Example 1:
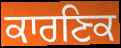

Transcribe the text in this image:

ਕਾਰਣਿਕ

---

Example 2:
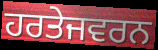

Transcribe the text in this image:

ਹਰਤੇਜਵਰਨ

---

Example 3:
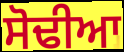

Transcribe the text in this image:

ਸੋਢੀਆ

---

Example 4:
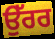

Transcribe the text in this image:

ਉੱਰਰ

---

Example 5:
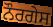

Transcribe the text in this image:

ਨੌਰਗੇਸ